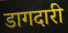
डागदारी